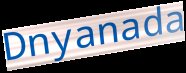
Dnyanada